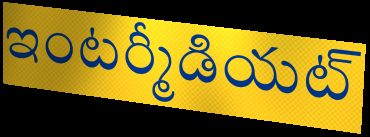
ఇంటర్మీడియట్